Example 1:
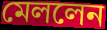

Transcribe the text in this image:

মেললেন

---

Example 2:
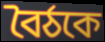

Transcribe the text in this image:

বৈঠকে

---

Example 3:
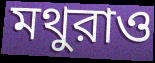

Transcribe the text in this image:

মথুরাও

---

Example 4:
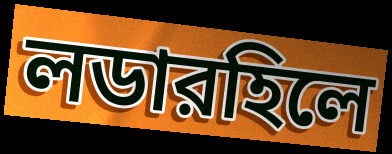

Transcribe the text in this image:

লডারহিলে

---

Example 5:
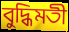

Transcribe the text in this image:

বুদ্ধিমতী